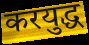
करयुद्ध